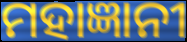
ମହାଜ୍ଞାନୀ